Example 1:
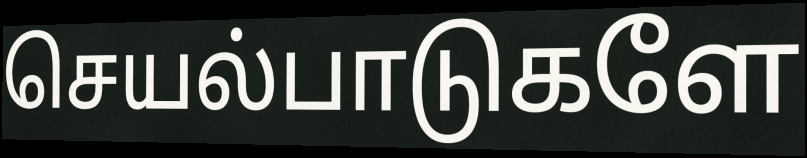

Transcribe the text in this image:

செயல்பாடுகளே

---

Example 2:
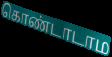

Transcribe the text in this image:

கொண்டாடாம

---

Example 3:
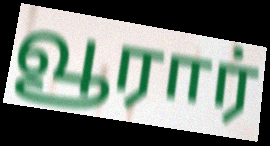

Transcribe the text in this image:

வூரார்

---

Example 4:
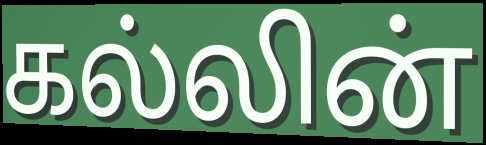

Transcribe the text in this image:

கல்லின்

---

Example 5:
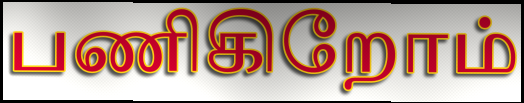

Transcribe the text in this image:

பணிகிறோம்